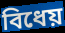
বিধেয়